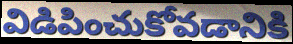
విడిపించుకోవడానికి